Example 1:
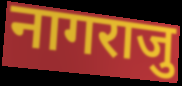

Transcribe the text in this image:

नागराजु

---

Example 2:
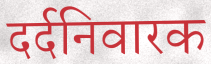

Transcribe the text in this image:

दर्दनिवारक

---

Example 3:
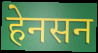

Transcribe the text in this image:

हेनसन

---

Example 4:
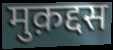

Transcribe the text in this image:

मुक़द्दस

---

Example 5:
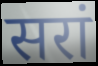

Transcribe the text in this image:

सरां